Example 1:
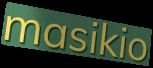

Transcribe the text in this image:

masikio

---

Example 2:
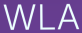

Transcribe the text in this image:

WLA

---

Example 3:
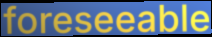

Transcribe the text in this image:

foreseeable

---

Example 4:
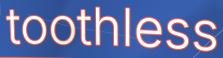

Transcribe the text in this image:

toothless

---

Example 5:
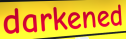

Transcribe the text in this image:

darkened